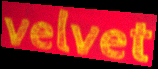
velvet